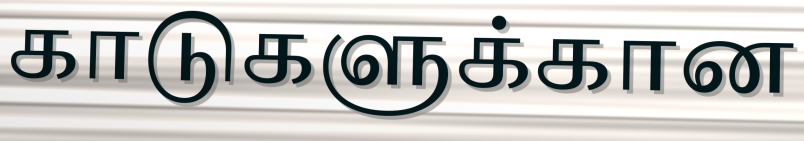
காடுகளுக்கான